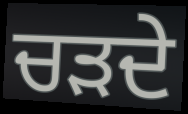
ਚੜਦੇ